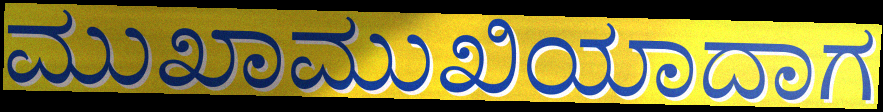
ಮುಖಾಮುಖಿಯಾದಾಗ